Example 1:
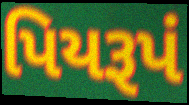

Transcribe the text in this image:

પિયરૂપં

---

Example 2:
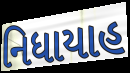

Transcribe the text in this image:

નિધાયાહ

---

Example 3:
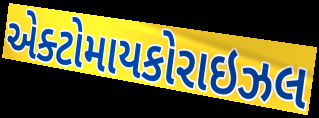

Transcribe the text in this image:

એક્ટોમાયકોરાઇઝલ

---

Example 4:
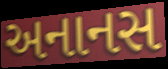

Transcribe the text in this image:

અનાનસ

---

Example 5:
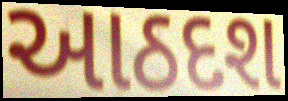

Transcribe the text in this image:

આઠદશ